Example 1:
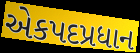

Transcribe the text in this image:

એકપદપ્રધાન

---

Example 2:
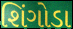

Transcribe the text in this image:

શિંગોડા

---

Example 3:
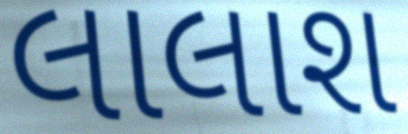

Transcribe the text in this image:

લાલાશ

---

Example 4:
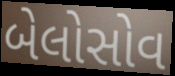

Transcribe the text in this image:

બેલોસોવ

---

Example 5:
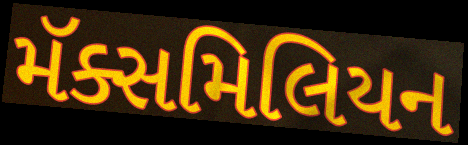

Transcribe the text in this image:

મૅક્સમિલિયન